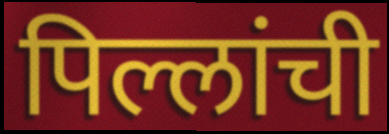
पिल्लांची